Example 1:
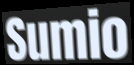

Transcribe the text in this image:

Sumio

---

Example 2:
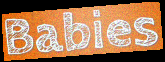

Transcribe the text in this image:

Babies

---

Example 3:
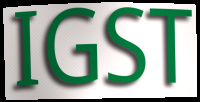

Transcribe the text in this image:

IGST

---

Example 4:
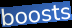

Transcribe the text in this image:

boosts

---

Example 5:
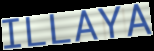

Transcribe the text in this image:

ILLAYA